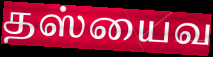
தஸ்யைவ